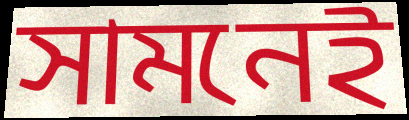
সামনেই